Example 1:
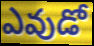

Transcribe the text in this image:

ఎవుడో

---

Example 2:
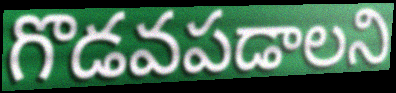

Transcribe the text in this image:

గొడవపడాలని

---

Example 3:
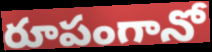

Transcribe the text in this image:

రూపంగానో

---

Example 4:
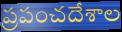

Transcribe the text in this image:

ప్రపంచదేశాల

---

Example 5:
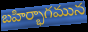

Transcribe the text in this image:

బహిర్భాగమున